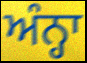
ਅੰਨ੍ਹ੍ਹਾ